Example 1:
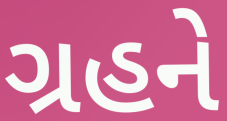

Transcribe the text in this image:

ગ્રહને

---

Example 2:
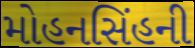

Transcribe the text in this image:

મોહનસિંહની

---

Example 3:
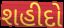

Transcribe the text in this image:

શહીદો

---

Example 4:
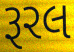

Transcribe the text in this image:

રૂરલ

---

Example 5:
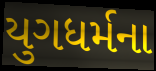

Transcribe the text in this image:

યુગધર્મના